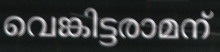
വെങ്കിട്ടരാമന്